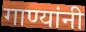
गाण्यांनी